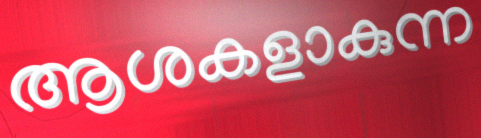
ആശകളാകുന്ന